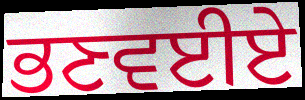
ਭਣਵਈਏ